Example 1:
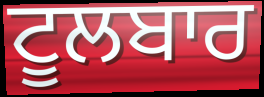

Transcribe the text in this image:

ਟੂਲਬਾਰ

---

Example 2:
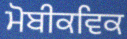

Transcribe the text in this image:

ਮੋਬੀਕਵਿਕ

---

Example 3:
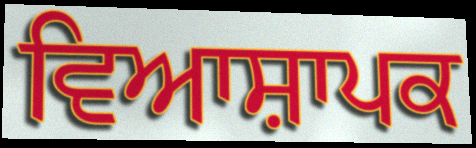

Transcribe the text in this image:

ਵਿਆਸ਼ਾਪਕ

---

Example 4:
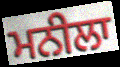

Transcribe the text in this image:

ਮਨੀਲਾ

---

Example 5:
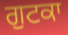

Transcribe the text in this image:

ਗੁਟਕਾ